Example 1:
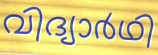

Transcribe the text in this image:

വിദ്യാർഥി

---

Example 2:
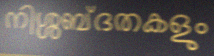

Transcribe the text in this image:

നിശ്ശബ്ദതകളും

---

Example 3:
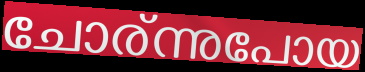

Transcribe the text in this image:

ചോര്ന്നുപോയ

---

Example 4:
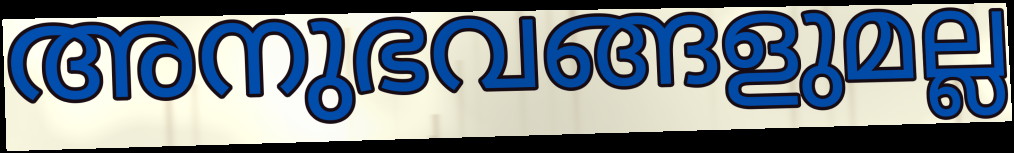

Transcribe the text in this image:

അനുഭവങ്ങളുമല്ല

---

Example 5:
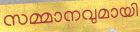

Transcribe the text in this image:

സമ്മാനവുമായി